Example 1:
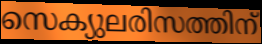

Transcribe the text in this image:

സെക്യുലരിസത്തിന്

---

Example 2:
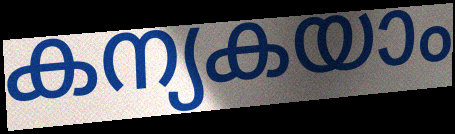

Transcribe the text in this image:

കന്യകയാം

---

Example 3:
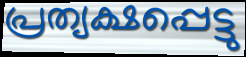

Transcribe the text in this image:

പ്രത്യക്ഷപ്പെട്ടു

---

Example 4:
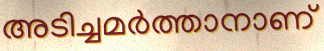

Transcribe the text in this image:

അടിച്ചമർത്താനാണ്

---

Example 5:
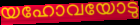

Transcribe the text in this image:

യഹോവയോടു